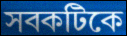
সবকটিকে